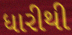
ધારીથી